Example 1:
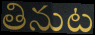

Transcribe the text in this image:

తినుట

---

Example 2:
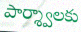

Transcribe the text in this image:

పార్శ్వాలకు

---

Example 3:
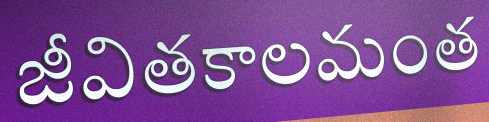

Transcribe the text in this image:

జీవితకాలమంత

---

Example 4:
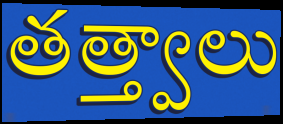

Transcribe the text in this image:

తత్త్వాలు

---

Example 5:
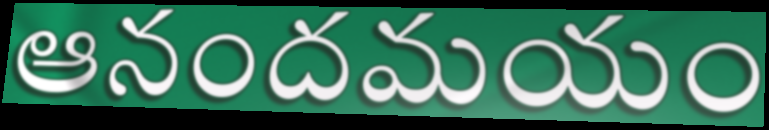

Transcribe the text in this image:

ఆనందమయం